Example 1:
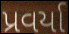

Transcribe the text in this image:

પ્રવર્યા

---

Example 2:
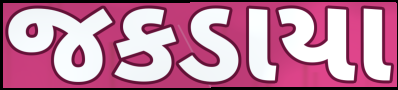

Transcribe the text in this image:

જકડાયા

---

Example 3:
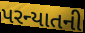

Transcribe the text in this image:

પરન્યાતની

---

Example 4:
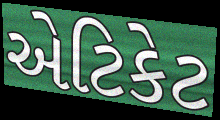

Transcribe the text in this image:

એટિકેટ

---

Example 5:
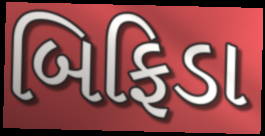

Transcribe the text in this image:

બિફિડા